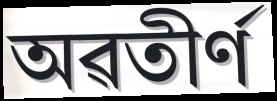
অৱতীৰ্ণ